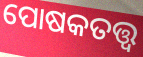
ପୋଷକତତ୍ତ୍ବ